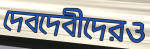
দেবদেবীদেরও